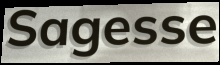
Sagesse